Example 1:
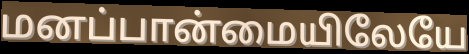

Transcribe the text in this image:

மனப்பான்மையிலேயே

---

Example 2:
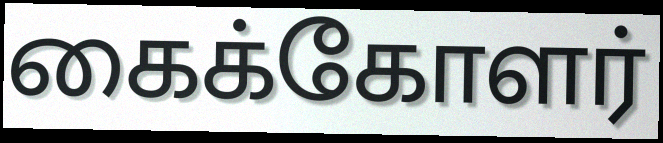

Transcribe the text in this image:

கைக்கோளர்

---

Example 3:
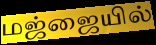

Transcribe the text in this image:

மஜ்ஜையில்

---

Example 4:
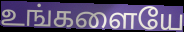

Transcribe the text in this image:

உங்களையே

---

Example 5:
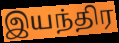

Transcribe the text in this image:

இயந்திர